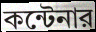
কন্টেনার